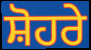
ਸ਼ੋਹਰੇ